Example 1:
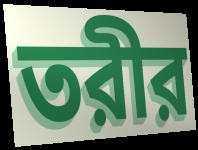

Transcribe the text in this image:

তরীর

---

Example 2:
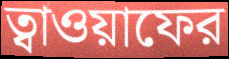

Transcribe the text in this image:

ত্বাওয়াফের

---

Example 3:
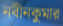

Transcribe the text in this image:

নবীনকুমার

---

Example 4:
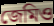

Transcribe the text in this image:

জেমিও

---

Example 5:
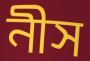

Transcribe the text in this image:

নীস